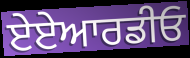
ਏਏਆਰਡੀਓ